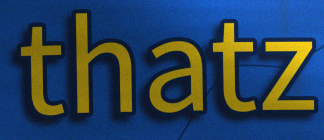
thatz